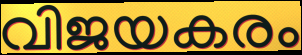
വിജയകരം